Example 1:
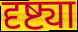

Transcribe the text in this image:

दृष्ट्या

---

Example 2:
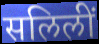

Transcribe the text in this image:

सलिलीं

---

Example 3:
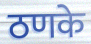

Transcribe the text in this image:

ठणके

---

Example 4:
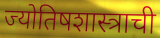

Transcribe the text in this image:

ज्योतिषशास्त्राची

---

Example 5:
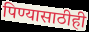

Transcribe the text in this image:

पिण्यासाठीही